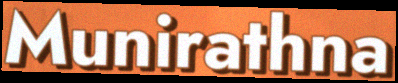
Munirathna